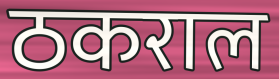
ठकराल